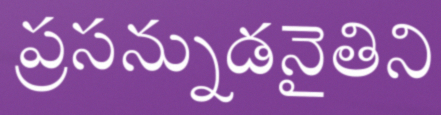
ప్రసన్నుడనైతిని